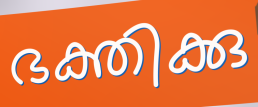
ഭക്തിക്കു